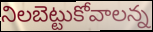
నిలబెట్టుకోవాలన్న